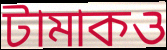
টামাকও